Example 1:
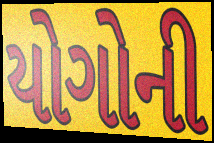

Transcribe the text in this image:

યોગોની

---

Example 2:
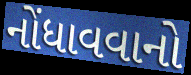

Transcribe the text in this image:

નોંધાવવાનો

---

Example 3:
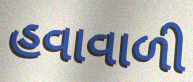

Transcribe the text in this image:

હવાવાળી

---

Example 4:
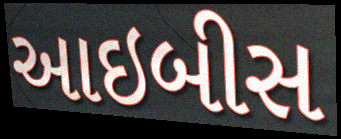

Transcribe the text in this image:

આઇબીસ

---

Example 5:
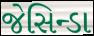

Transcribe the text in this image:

જેસિન્ડા